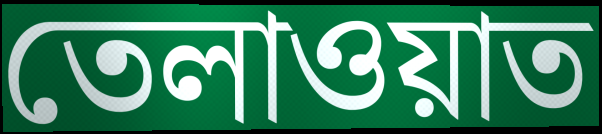
তেলাওয়াত